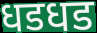
धडधड